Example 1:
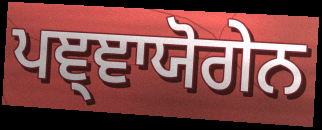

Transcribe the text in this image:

ਪਞ੍ਞਾਯੋਗੇਨ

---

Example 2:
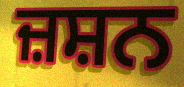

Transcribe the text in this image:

ਜ਼ਸ਼ਨ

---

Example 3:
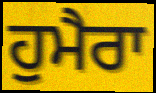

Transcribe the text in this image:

ਹੁਮੈਰਾ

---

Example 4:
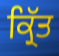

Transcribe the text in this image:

ਕ੍ਰਿੱਤ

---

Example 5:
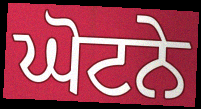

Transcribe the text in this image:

ਘੋਟਨੇ